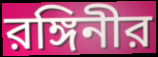
রঙ্গিনীর